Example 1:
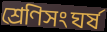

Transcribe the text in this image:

শ্রেণিসংঘর্ষ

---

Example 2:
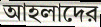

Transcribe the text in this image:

আহলাদের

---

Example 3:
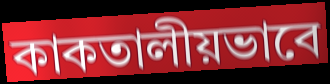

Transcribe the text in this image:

কাকতালীয়ভাবে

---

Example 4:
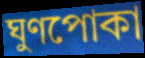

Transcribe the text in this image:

ঘুণপোকা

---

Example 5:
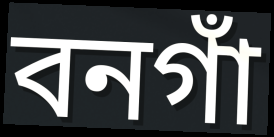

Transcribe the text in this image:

বনগাঁ